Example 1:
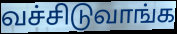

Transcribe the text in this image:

வச்சிடுவாங்க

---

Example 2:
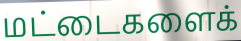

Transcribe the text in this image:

மட்டைகளைக்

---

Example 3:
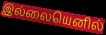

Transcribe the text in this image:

இல்லையெனில்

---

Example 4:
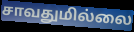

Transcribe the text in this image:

சாவதுமில்லை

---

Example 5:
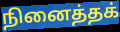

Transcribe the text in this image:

நினைத்தக்